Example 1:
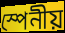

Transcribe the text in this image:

স্পেনীয়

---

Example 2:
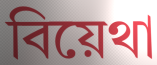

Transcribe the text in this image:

বিয়েথা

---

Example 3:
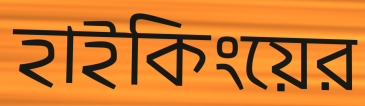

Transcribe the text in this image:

হাইকিংয়ের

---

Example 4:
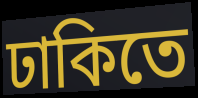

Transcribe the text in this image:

ঢাকিতে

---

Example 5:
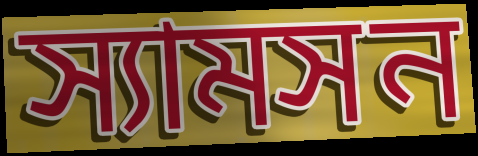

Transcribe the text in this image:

স্যামসন